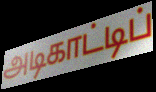
அடிகாட்டிப்